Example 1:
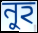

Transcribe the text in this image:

নুহ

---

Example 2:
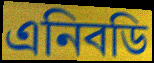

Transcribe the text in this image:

এনিবডি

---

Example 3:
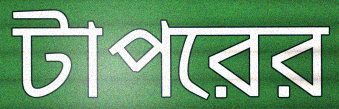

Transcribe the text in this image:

টাপরের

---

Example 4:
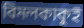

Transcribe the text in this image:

বিমলকাকুই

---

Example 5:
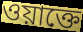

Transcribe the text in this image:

ওয়াক্তে